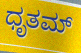
ಧೃತಮ್